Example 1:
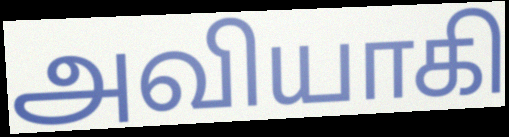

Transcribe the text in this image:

அவியாகி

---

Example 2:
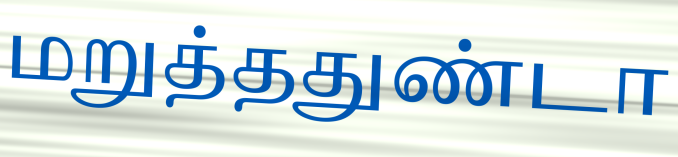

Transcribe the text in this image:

மறுத்ததுண்டா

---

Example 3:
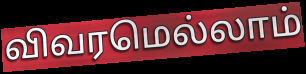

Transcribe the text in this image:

விவரமெல்லாம்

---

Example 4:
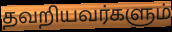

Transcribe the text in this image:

தவறியவர்களும்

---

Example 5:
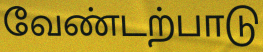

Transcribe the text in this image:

வேண்டற்பாடு